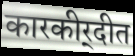
कारकीर्दीत